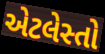
એટલેસ્તો